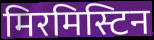
मिरमिस्टिन